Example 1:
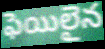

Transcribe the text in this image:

ఫెయిలైన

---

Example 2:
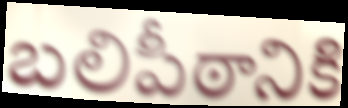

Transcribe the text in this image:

బలిపీఠానికి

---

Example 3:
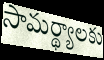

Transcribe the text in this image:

సామర్థ్యాలకు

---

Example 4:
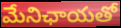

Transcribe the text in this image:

మేనిఛాయతో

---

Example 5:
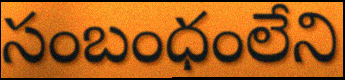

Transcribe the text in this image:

సంబంధంలేని